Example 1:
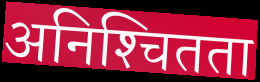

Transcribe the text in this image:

अनिश्‍चितता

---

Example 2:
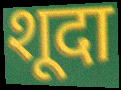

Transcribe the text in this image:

शूदा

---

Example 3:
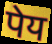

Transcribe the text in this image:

पेय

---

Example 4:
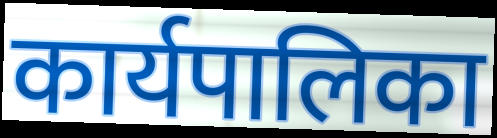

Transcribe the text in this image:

कार्यपालिका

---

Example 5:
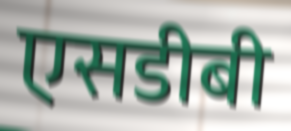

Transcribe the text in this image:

एसडीबी